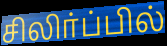
சிலிர்ப்பில்